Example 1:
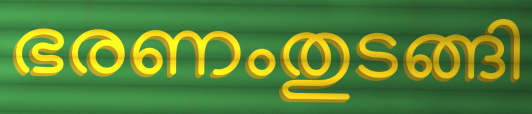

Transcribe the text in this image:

ഭരണംതുടങ്ങി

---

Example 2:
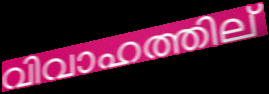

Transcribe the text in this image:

വിവാഹത്തില്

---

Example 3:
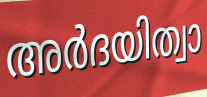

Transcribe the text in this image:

അർദയിത്വാ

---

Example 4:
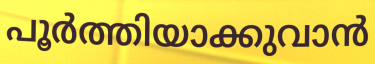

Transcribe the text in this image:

പൂർത്തിയാക്കുവാൻ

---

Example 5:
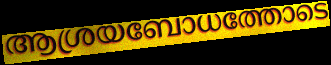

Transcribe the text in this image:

ആശ്രയബോധത്തോടെ